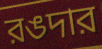
রঙদার